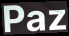
Paz